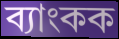
ব্যাংকক